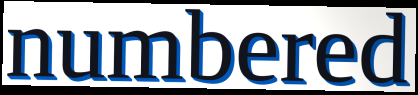
numbered